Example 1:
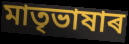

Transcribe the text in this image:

মাতৃভাষাৰ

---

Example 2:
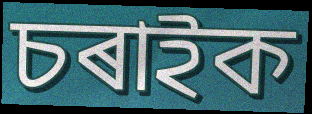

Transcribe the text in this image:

চৰাইক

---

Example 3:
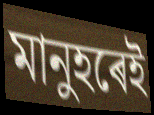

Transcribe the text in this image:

মানুহৰেই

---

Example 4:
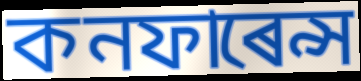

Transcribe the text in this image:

কনফাৰেন্স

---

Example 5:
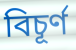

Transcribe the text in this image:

বিচূৰ্ণ